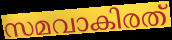
സമവാകിരത്